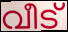
വീട്